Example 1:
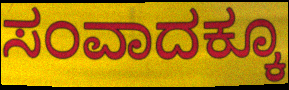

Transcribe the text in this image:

ಸಂವಾದಕ್ಕೂ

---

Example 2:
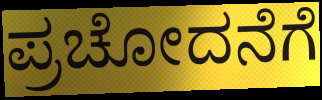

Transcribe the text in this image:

ಪ್ರಚೋದನೆಗೆ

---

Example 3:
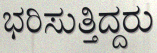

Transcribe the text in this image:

ಭರಿಸುತ್ತಿದ್ದರು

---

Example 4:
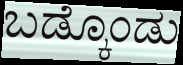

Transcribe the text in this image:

ಬಡ್ಕೊಂಡು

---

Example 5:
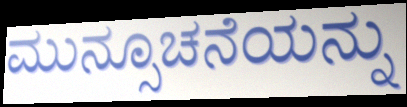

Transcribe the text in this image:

ಮುನ್ಸೂಚನೆಯನ್ನು